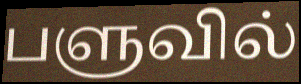
பளுவில்